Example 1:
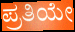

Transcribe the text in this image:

ಪ್ರತಿಯೇ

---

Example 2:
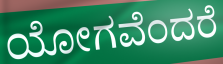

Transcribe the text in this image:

ಯೋಗವೆಂದರೆ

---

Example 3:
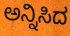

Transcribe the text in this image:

ಅನ್ನಿಸಿದ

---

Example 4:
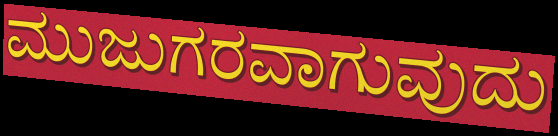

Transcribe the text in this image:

ಮುಜುಗರವಾಗುವುದು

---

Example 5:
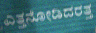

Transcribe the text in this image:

ಎತ್ತನೋಡಿದರತ್ತ